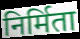
निर्मिता